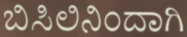
ಬಿಸಿಲಿನಿಂದಾಗಿ